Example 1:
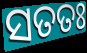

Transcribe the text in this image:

ସତତଃ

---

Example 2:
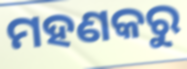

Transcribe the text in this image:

ମହଣକରୁ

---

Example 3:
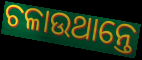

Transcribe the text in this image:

ଚଳାଉଥାନ୍ତେ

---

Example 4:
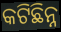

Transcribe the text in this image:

କଟିଛିନ୍ନ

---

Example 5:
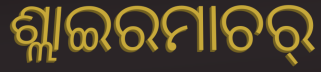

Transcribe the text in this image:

ଶ୍ଲାଇରମାଚର୍